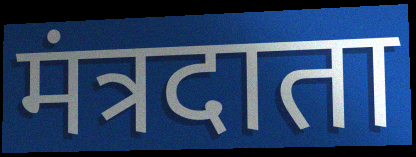
मंत्रदाता